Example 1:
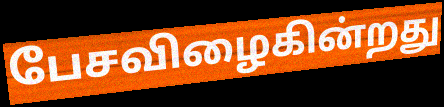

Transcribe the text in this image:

பேசவிழைகின்றது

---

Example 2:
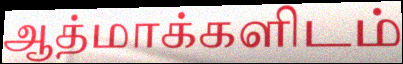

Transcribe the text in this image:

ஆத்மாக்களிடம்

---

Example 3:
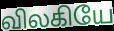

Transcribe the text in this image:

விலகியே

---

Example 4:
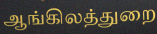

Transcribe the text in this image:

ஆங்கிலத்துறை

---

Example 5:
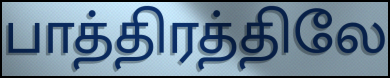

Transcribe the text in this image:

பாத்திரத்திலே